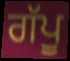
ਗੱਪੂ